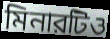
মিনারটিও